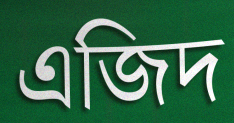
এজিদ